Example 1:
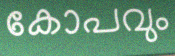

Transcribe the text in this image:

കോപവും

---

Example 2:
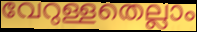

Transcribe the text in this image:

വേറുള്ളതെല്ലാം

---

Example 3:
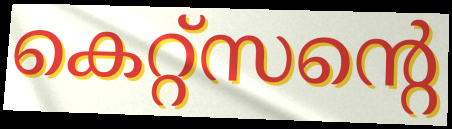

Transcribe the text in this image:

കെറ്റ്സന്റെ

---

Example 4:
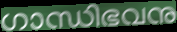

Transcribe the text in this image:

ഗാന്ധിഭവനു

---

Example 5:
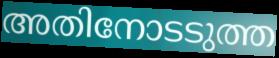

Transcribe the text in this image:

അതിനോടടുത്ത